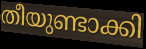
തീയുണ്ടാക്കി